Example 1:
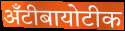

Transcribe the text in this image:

अँटीबायोटीक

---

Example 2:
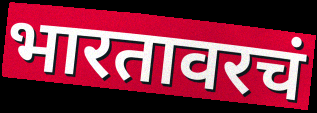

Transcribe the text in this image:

भारतावरचं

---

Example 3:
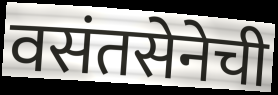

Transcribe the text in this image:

वसंतसेनेची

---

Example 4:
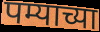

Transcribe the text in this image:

पम्याच्या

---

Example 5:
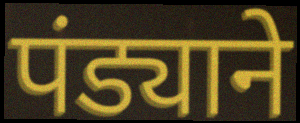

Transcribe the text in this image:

पंड्याने